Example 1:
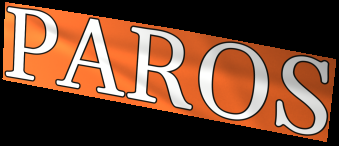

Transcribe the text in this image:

PAROS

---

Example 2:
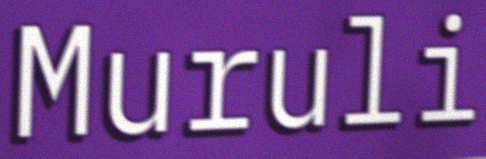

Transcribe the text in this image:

Muruli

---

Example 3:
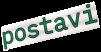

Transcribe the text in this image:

postavi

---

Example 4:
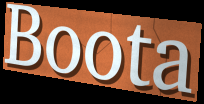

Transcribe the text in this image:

Boota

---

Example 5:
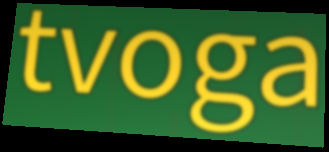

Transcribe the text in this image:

tvoga